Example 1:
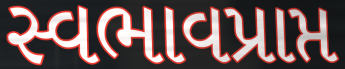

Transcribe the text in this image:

સ્વભાવપ્રાપ્ત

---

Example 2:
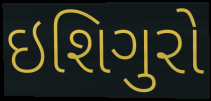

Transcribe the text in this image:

ઇશિગુરો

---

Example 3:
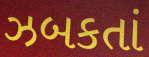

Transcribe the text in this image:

ઝબકતાં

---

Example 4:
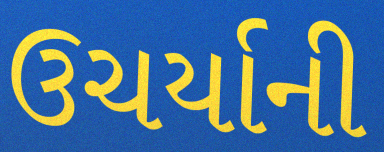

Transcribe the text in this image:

ઉચર્યાની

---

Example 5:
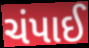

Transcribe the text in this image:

ચંપાઈ